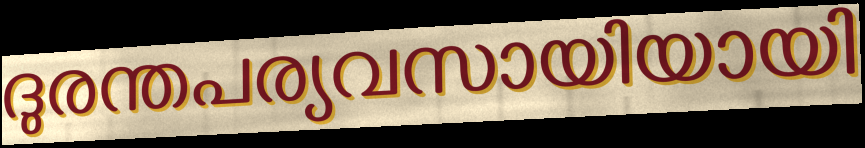
ദുരന്തപര്യവസായിയായി